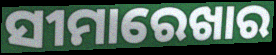
ସୀମାରେଖାର